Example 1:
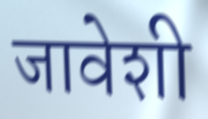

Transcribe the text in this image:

जावेशी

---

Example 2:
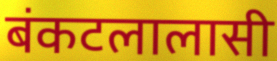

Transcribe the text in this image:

बंकटलालासी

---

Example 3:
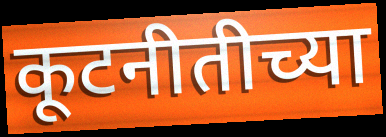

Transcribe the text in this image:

कूटनीतीच्या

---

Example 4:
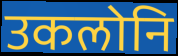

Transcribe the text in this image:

उकलोनि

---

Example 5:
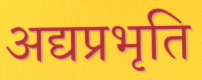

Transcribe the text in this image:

अद्यप्रभृति